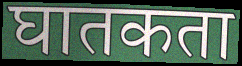
घातकता